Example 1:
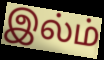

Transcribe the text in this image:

இல்ம்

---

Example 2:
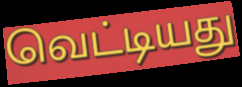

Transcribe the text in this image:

வெட்டியது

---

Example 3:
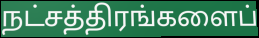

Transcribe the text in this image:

நட்சத்திரங்களைப்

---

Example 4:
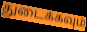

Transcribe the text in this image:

துடைக்கவும்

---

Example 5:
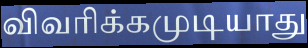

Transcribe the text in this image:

விவரிக்கமுடியாது